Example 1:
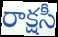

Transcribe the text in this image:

రాక్షసీ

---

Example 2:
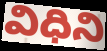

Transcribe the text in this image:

విధిని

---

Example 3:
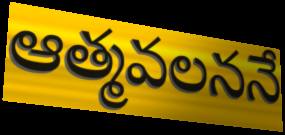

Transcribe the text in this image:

ఆత్మవలననే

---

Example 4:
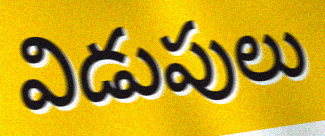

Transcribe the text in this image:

విడుపులు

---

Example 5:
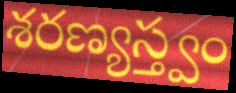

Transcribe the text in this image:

శరణ్యస్త్వం